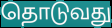
தொடுவது